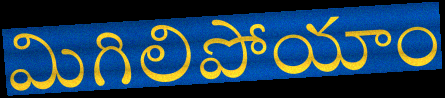
మిగిలిపోయాం